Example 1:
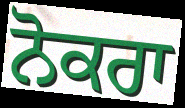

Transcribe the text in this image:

ਨੋਕਰਾ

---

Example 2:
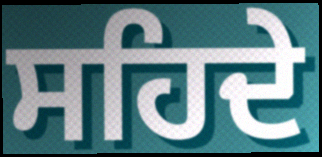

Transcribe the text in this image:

ਸਹਿਦੇ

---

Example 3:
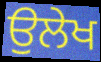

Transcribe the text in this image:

ਉਲੇਖ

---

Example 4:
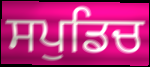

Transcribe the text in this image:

ਸਪੁਡਿਚ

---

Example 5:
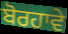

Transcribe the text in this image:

ਬੋਰਹਾਵੇ